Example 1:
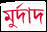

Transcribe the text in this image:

মুৰ্দাদ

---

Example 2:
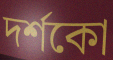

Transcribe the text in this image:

দৰ্শকো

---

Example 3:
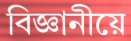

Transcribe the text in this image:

বিজ্ঞানীয়ে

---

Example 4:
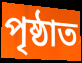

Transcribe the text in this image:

পৃষ্ঠাত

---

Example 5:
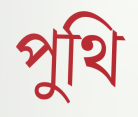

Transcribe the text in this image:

পুথি